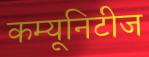
कम्यूनिटीज